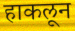
हाकलून